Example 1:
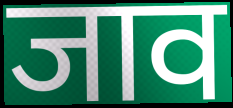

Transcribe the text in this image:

जाव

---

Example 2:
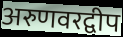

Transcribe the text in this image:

अरुणवरद्वीप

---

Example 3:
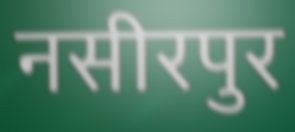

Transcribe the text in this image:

नसीरपुर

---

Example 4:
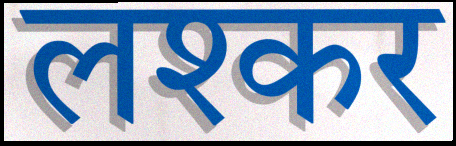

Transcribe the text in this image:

लश्‍कर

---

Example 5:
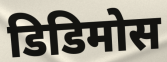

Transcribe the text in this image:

डिडिमोस